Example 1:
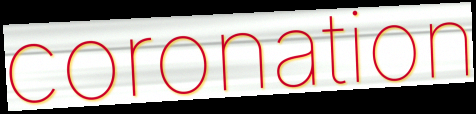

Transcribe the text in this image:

coronation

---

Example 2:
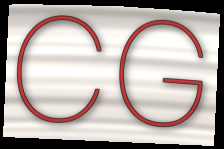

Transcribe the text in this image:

CG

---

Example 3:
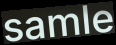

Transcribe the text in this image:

samle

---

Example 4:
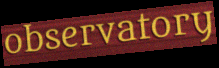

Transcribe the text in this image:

observatory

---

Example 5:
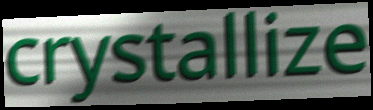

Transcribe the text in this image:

crystallize